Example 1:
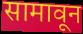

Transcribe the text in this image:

सामावून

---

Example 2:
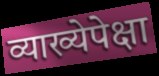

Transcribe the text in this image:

व्याख्येपेक्षा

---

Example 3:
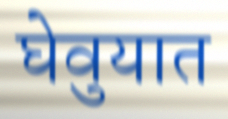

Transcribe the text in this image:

घेवुयात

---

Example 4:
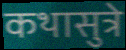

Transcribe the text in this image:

कथासुत्रे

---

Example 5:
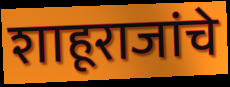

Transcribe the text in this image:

शाहूराजांचे